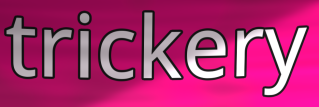
trickery